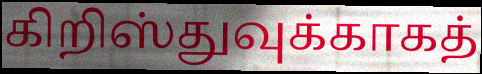
கிறிஸ்துவுக்காகத்